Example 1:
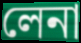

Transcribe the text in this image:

লেনা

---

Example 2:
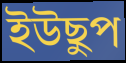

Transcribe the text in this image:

ইউছুপ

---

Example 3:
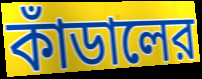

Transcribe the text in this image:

কাঁডালের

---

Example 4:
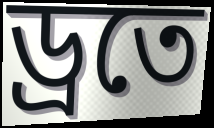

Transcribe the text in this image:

ড্রতে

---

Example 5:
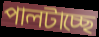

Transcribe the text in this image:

পালটাচ্ছে